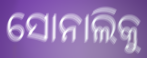
ସୋନାଲିକୁ